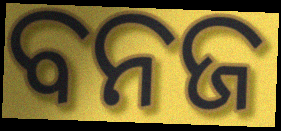
ବନଜ